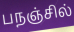
பநஞ்சில்